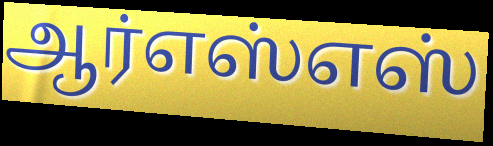
ஆர்எஸ்எஸ்